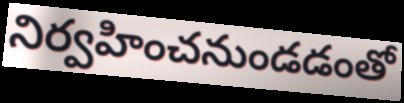
నిర్వహించనుండడంతో